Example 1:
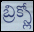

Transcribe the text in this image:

బ్రిక్స్లో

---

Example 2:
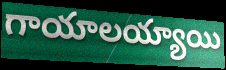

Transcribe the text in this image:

గాయాలయ్యాయి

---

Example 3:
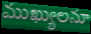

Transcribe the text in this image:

ముఖ్యులనూ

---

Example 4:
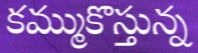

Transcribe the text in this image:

కమ్ముకొస్తున్న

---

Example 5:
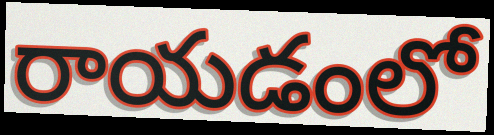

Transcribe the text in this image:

రాయడంలో